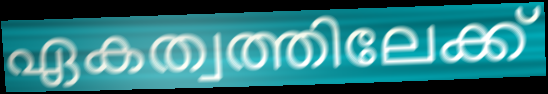
ഏകത്വത്തിലേക്ക്